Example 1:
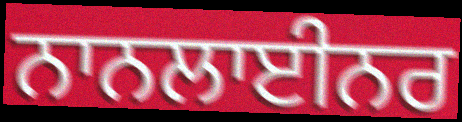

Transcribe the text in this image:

ਨਾਨਲਾਈਨਰ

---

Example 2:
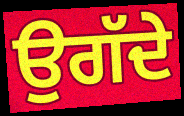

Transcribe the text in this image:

ਉਗੱਦੇ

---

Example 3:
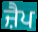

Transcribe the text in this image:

ਜ਼ੈਪ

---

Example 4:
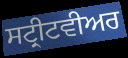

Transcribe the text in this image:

ਸਟ੍ਰੀਟਵੀਅਰ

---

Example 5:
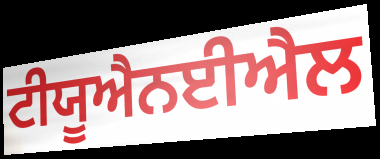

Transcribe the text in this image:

ਟੀਯੂਐਨਈਐਲ